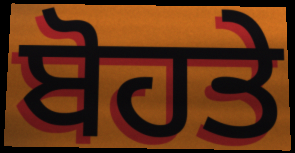
ਬੋਹਤੇ